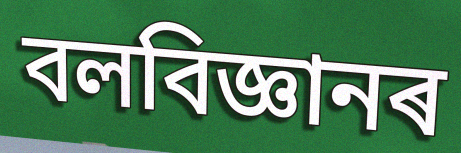
বলবিজ্ঞানৰ